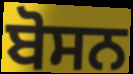
ਬੋਸਨ